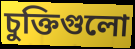
চুক্তিগুলো